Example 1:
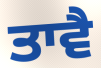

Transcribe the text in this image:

ਤਾਵੈ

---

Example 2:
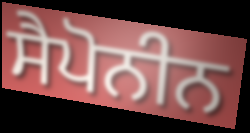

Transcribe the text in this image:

ਸੈਪੋਨੀਨ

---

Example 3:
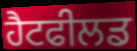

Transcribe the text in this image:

ਹੈਟਫੀਲਡ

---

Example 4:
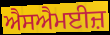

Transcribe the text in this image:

ਐਸਐਮਈਜ਼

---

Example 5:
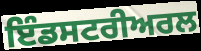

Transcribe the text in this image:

ਇੰਡਸਟਰੀਅਰਲ